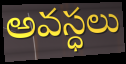
అవస్ధలు